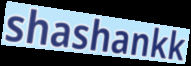
shashankk